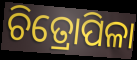
ଚିତ୍ରୋପିଳା